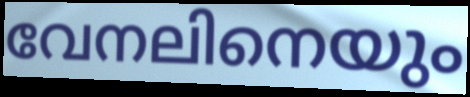
വേനലിനെയും